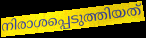
നിരാശപ്പെടുത്തിയത്